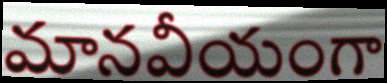
మానవీయంగా